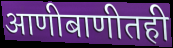
आणीबाणीतही